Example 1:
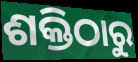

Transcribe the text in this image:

ଶକ୍ତିଠାରୁ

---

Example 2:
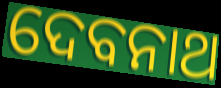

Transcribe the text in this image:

ଦେବନାଥ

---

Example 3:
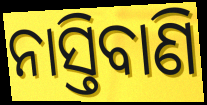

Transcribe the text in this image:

ନାସ୍ତିବାଣି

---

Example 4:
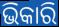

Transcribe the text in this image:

ଭିକାରି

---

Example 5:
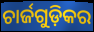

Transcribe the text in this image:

ଚାର୍ଜଗୁଡ଼ିକର